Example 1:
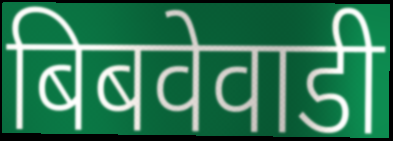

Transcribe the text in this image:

बिबवेवाडी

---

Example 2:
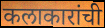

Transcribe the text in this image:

कलाकारांची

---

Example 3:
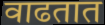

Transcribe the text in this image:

वाढतात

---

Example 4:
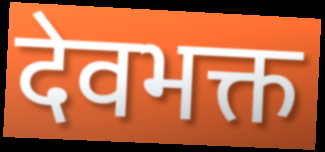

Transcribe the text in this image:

देवभक्त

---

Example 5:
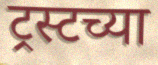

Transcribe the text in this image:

ट्रस्टच्या